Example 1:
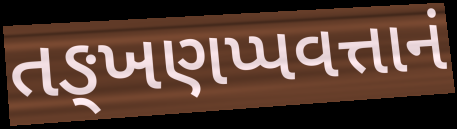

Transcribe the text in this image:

તઙ્ખણપ્પવત્તાનં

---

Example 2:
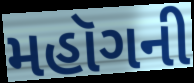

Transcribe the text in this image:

મહૉગની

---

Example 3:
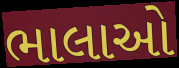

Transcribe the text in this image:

ભાલાઓ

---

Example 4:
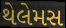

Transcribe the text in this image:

થેલેમસ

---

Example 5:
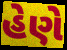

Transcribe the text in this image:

હેણે